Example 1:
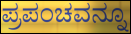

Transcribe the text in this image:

ಪ್ರಪಂಚವನ್ನೂ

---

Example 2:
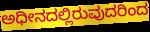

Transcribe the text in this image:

ಅಧೀನದಲ್ಲಿರುವುದರಿಂದ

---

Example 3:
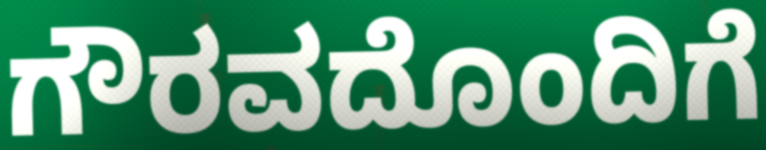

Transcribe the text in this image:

ಗೌರವದೊಂದಿಗೆ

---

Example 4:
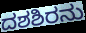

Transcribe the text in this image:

ದಶಶಿರನು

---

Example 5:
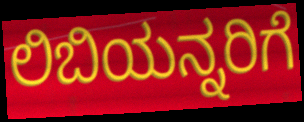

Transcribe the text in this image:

ಲಿಬಿಯನ್ನರಿಗೆ